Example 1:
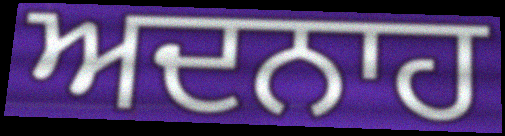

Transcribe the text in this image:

ਅਦਨਾਹ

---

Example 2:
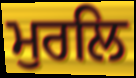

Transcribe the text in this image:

ਮੁਰਲਿ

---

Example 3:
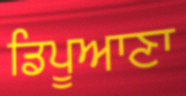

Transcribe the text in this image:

ਡਿਪੂਆਣਾ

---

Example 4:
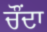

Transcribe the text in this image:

ਚੌਂਦਾ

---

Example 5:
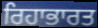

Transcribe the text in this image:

ਰਿਹਾਭਾਰਤ